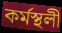
কৰ্মস্থলী